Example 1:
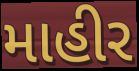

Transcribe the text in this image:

માહીર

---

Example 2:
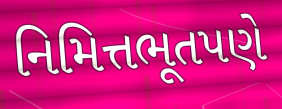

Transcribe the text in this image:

નિમિત્તભૂતપણે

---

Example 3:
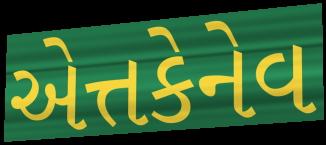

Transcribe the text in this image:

એત્તકેનેવ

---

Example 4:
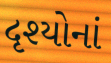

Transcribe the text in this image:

દૃશ્યોનાં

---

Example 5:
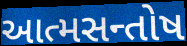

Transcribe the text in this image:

આત્મસન્તોષ